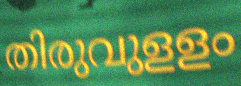
തിരുവുളളം